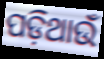
ପଡ଼ିଥାଉଁ